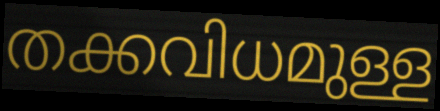
തക്കവിധമുള്ള